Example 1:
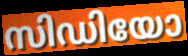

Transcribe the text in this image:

സിഡിയോ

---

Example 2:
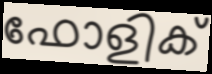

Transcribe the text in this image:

ഫോളിക്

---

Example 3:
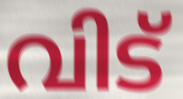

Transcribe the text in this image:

വിട്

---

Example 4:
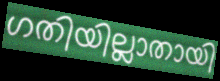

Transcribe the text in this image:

ഗതിയില്ലാതായി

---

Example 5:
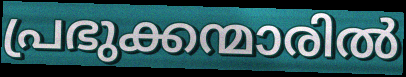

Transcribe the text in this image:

പ്രഭുക്കന്മാരിൽ